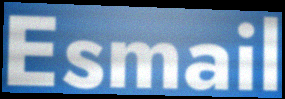
Esmail